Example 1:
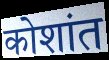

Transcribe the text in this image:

कोशांत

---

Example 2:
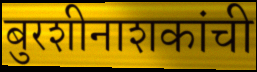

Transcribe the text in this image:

बुरशीनाशकांची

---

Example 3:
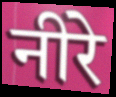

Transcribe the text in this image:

नीरे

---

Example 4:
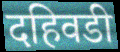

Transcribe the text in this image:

दहिवडी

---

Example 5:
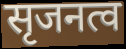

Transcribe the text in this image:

सृजनत्व